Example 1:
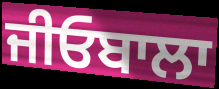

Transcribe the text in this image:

ਜੀਓਬਾਲਾ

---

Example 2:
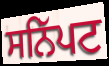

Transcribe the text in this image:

ਸਨਿੱਪਟ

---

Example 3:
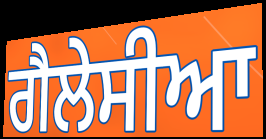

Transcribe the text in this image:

ਗੈਲੇਸੀਆ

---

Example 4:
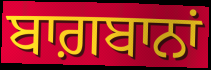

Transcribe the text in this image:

ਬਾਗ਼ਬਾਨਾਂ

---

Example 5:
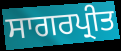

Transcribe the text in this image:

ਸਾਗਰਪ੍ਰੀਤ